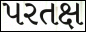
પરતક્ષ